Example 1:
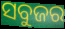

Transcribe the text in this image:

ସବୁଜର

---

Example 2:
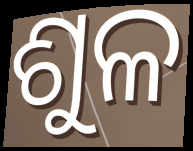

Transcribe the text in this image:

ଶୁଳ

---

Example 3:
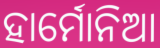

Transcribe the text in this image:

ହାର୍ମୋନିଆ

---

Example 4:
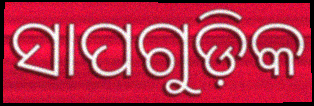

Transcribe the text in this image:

ସାପଗୁଡ଼ିକ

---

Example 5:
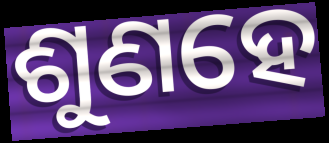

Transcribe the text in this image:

ଶୁଣହେ